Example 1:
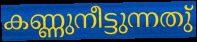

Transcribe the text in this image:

കണ്ണുനീട്ടുന്നതു്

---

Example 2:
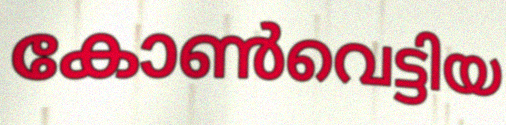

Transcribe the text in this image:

കോൺവെട്ടിയ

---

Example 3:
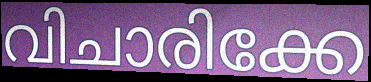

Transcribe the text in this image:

വിചാരിക്കേ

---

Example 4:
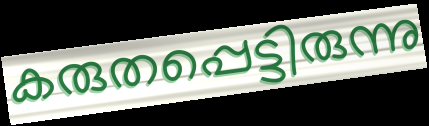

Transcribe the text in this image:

കരുതപ്പെട്ടിരുന്നു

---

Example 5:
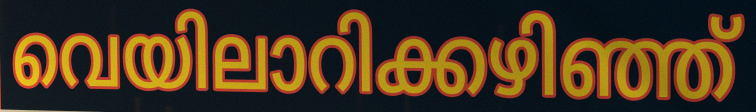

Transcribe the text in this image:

വെയിലാറിക്കഴിഞ്ഞ്